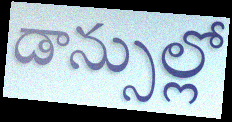
డాన్సుల్లో